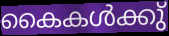
കൈകൾക്കു്